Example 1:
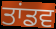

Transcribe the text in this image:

ਤਾਂਡਵ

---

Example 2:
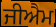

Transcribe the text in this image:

ਜੀਐਮ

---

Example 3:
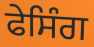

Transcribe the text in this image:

ਫੇਸਿੰਗ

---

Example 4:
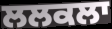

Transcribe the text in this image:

ਲਲਕਲਾ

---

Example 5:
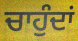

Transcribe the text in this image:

ਚਾਹੁੰਦਾਂ